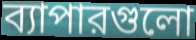
ব্যাপারগুলো